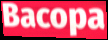
Bacopa